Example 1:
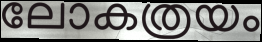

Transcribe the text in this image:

ലോകത്രയം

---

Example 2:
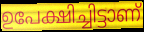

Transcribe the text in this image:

ഉപേക്ഷിച്ചിട്ടാണ്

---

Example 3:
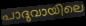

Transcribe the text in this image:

പാദുവായിലെ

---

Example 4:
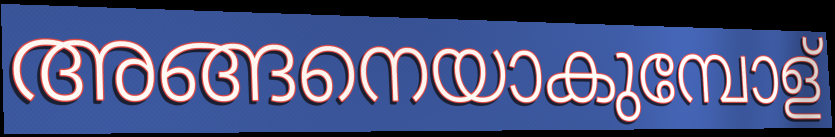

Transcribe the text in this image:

അങ്ങനെയാകുമ്പോള്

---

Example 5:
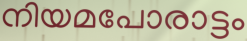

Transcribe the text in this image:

നിയമപോരാട്ടം